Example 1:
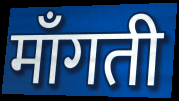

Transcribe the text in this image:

माँगती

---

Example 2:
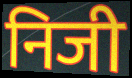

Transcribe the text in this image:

निजी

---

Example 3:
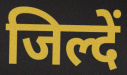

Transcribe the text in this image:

जिल्दें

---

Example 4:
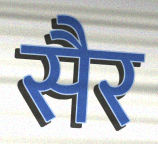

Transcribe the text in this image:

सैर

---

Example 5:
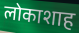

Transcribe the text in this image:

लोकाशाह